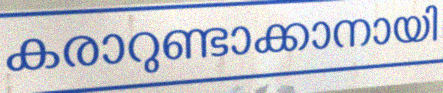
കരാറുണ്ടാക്കാനായി